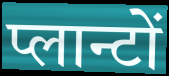
प्लान्टों